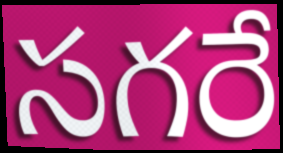
సగరే